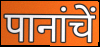
पानांचें